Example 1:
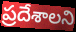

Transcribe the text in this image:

ప్రదేశాలని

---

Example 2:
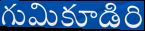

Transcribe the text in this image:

గుమికూడిరి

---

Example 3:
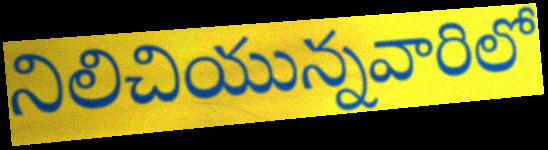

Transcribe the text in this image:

నిలిచియున్నవారిలో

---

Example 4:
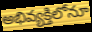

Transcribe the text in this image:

అభివ్యక్తిలోనూ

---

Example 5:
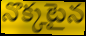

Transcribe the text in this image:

నొక్కటైన